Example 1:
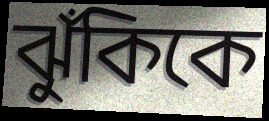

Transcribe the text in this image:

ঝুঁকিকে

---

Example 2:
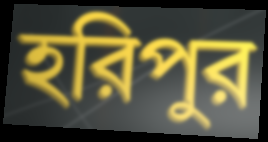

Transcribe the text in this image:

হরিপুর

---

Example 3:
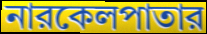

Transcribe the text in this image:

নারকেলপাতার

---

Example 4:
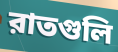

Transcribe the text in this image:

রাতগুলি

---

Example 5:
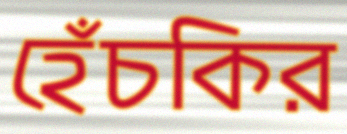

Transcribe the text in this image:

হেঁচকির